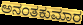
ಅನಂತಕುಮಾರ